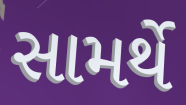
સામર્થે